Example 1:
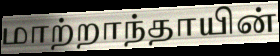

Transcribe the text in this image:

மாற்றாந்தாயின்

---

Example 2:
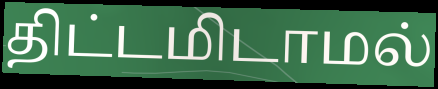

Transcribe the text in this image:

திட்டமிடாமல்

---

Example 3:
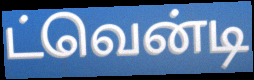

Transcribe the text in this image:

ட்வென்டி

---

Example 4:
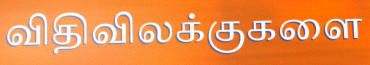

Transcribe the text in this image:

விதிவிலக்குகளை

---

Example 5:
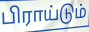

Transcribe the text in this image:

பிராய்டும்